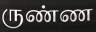
ருண்ண